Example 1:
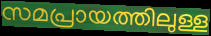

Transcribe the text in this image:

സമപ്രായത്തിലുള്ള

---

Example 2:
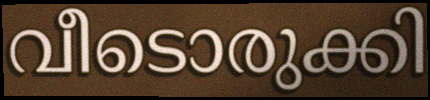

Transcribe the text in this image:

വീടൊരുക്കി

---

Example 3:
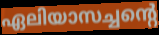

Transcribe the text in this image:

ഏലിയാസച്ചന്റെ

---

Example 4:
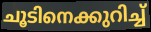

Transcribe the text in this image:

ചൂടിനെക്കുറിച്ച്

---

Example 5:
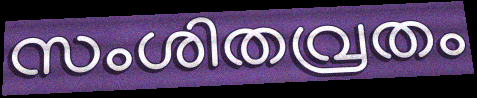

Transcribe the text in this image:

സംശിതവ്രതം